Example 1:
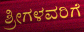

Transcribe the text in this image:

ಶ್ರೀಗಳವರಿಗೆ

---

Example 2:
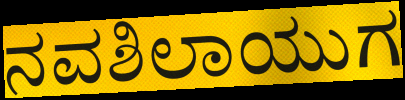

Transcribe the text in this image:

ನವಶಿಲಾಯುಗ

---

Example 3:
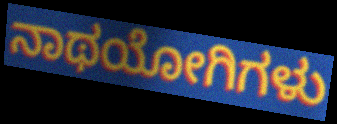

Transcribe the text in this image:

ನಾಥಯೋಗಿಗಳು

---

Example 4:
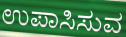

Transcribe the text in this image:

ಉಪಾಸಿಸುವ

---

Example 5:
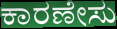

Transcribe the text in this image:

ಕಾರಣೇಸು